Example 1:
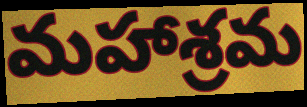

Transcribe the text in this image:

మహాశ్రమ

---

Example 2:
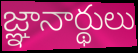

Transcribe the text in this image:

జ్ఞానార్థులు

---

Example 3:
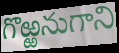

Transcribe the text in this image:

గొఱ్ఱనుగాని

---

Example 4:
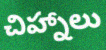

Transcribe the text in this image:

చిహ్నాలు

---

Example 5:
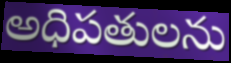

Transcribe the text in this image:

అధిపతులను